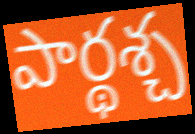
పార్థశ్చ